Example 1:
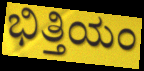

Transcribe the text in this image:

ಭಿತ್ತಿಯಂ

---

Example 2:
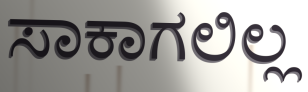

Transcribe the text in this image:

ಸಾಕಾಗಲಿಲ್ಲ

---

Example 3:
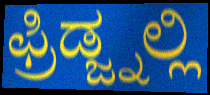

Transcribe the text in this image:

ಫ್ರಿಡ್ಜ್ನಲ್ಲಿ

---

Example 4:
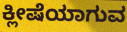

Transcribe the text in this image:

ಕ್ಲೀಷೆಯಾಗುವ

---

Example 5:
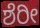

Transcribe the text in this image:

ಶೆರೀ